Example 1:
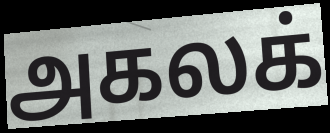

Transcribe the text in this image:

அகலக்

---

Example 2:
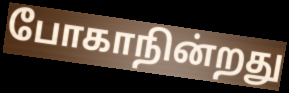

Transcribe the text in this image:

போகாநின்றது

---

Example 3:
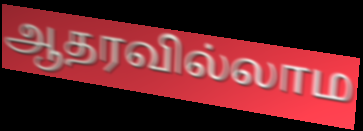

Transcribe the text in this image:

ஆதரவில்லாம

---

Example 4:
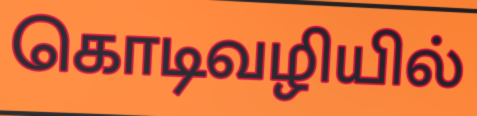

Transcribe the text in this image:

கொடிவழியில்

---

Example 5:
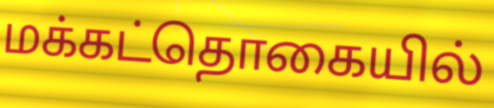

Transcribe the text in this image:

மக்கட்தொகையில்